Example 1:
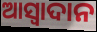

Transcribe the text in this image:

ଆସ୍ୱାଦାନ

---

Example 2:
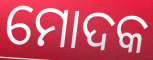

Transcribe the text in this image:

ମୋଦକ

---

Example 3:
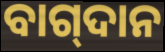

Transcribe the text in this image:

ବାଗ୍‍ଦାନ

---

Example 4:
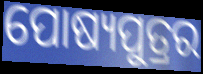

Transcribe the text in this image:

ପୋଷ୍ୟପୁତ୍ରର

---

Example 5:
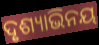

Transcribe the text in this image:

ଦୃଶ୍ୟାଭିନୟ